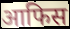
आफिस